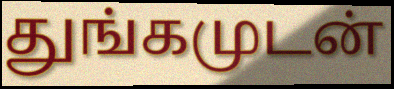
துங்கமுடன்